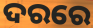
ଦରରେ